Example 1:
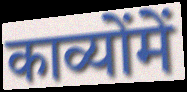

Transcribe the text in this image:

काव्योंमें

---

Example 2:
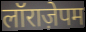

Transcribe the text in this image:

लॉराज़ेपम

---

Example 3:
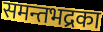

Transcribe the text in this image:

समन्तभद्रका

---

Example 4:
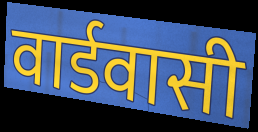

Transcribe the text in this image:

वार्डवासी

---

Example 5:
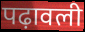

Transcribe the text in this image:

पढ़ावली